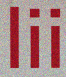
lii